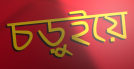
চড়ুইয়ে